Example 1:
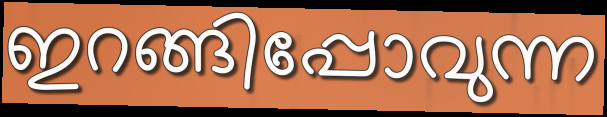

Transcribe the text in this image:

ഇറങ്ങിപ്പോവുന്ന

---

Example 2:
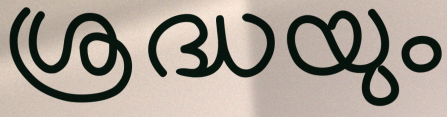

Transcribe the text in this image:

ശ്രദ്ധയും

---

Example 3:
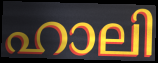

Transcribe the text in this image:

ഹാലി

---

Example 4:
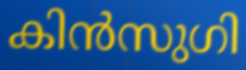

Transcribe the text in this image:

കിൻസുഗി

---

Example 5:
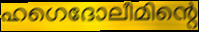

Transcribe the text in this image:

ഹഗെദോലീമിന്റെ